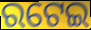
ରଟେଇ